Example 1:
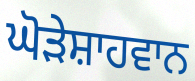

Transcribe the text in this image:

ਘੋੜੇਸ਼ਾਹਵਾਨ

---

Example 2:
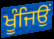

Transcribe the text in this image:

ਖੂੰਜਿਉਂ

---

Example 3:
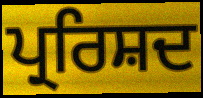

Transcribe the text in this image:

ਪ੍ਰਰਿਸ਼ਦ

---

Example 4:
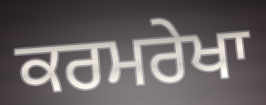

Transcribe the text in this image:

ਕਰਮਰੇਖਾ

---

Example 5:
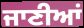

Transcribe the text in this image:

ਜਾਣੀਆਂ